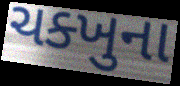
ચક્ખુના